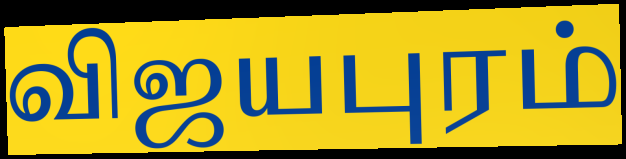
விஜயபுரம்